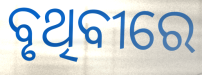
ବୃଥିବୀରେ